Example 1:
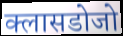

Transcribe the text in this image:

क्लासडोजो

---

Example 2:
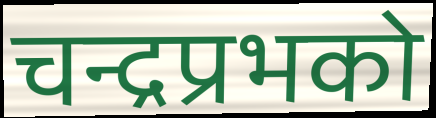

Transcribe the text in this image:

चन्द्रप्रभको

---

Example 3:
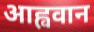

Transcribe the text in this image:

आह्ववान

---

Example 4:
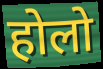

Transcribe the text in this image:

होलो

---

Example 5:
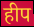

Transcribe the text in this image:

हीप